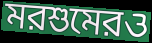
মরশুমেরও